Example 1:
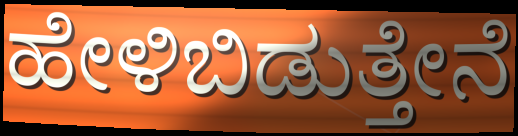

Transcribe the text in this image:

ಹೇಳಿಬಿಡುತ್ತೇನೆ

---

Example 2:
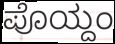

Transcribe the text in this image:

ಪೊಯ್ದಂ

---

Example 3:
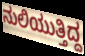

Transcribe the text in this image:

ನುಲಿಯುತ್ತಿದ್ದ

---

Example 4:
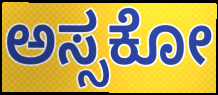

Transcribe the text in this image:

ಅಸ್ಸಕೋ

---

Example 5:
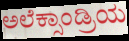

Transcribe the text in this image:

ಅಲೆಕ್ಸಾಂಡ್ರಿಯ